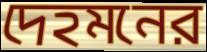
দেহমনের